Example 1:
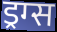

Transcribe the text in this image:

ड्रग्स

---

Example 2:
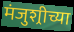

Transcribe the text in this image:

मंजुश्रीच्या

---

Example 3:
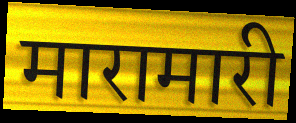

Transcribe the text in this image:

मारामारी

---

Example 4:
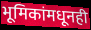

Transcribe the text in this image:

भूमिकांमधूनही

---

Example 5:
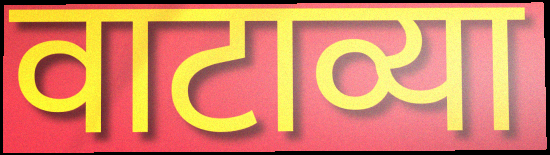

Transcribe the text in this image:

वाटाव्या